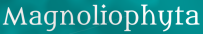
Magnoliophyta